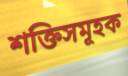
শক্তিসমূহক